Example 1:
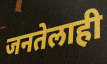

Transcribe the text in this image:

जनतेलाही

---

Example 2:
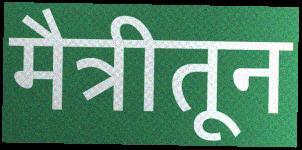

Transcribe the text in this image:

मैत्रीतून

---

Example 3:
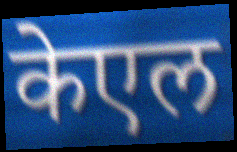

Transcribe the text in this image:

केएल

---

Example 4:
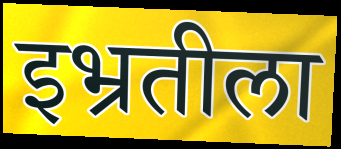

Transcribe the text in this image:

इभ्रतीला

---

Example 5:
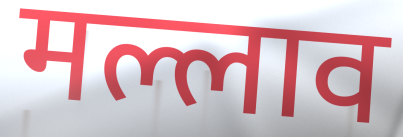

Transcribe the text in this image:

मल्लाव